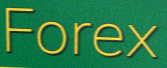
Forex